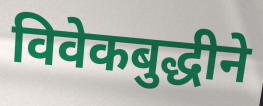
विवेकबुद्धीने